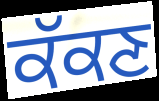
ਕੱਕਣ